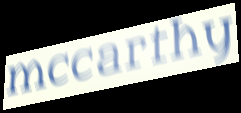
mccarthy